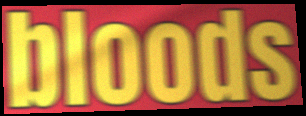
bloods